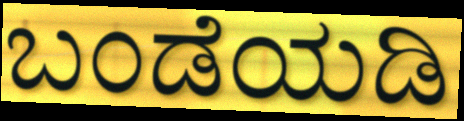
ಬಂಡೆಯಡಿ